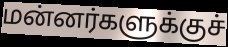
மன்னர்களுக்குச்